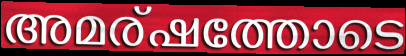
അമര്ഷത്തോടെ